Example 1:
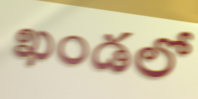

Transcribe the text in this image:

ఖండలో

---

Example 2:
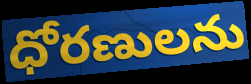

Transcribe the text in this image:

ధోరణులను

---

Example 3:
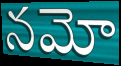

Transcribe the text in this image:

నమో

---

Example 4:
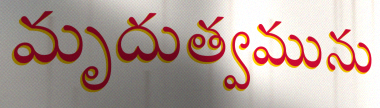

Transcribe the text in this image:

మృదుత్వమును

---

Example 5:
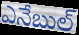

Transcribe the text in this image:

ఎనేబుల్